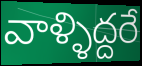
వాళ్ళిద్దరే